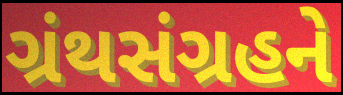
ગ્રંથસંગ્રહને